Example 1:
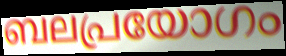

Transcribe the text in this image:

ബലപ്രയോഗം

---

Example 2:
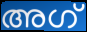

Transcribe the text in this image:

അഗ്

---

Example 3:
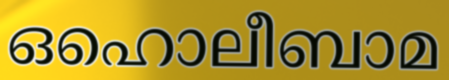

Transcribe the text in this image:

ഒഹൊലീബാമ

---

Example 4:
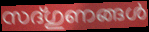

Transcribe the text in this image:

സദ്ഗുണങ്ങൾ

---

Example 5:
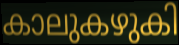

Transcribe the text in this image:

കാലുകഴുകി